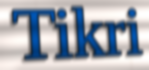
Tikri